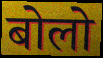
बोलो